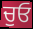
ਚੁਓ